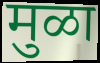
मुळा